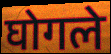
घोगले